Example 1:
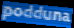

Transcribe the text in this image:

podduna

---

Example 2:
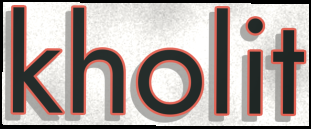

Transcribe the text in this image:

kholit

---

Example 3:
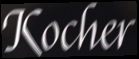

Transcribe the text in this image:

Kocher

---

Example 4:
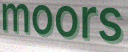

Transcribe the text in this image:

moors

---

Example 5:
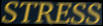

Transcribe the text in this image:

STRESS